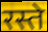
रस्ते